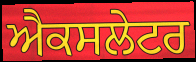
ਐਕਸਲੇਟਰ